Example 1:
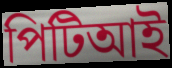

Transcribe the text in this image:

পিটিআই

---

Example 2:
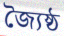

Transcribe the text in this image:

জ্যৈষ্ঠ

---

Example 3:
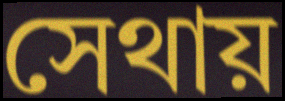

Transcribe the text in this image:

সেথায়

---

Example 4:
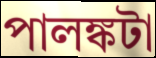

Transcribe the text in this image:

পালঙ্কটা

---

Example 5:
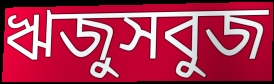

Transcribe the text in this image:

ঋজুসবুজ